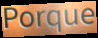
Porque